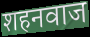
शहनवाज